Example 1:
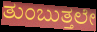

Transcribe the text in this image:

ತುಂಬುತ್ತಲೇ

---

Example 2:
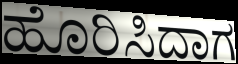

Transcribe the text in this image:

ಹೊರಿಸಿದಾಗ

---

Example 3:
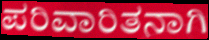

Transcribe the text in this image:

ಪರಿವಾರಿತನಾಗಿ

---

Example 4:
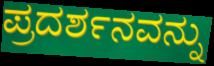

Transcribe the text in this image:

ಪ್ರದರ್ಶನವನ್ನು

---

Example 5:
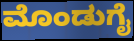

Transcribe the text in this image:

ಮೊಂಡುಗೈ